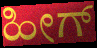
ಹೀಗ್